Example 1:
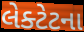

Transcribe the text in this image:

લેક્ટેટના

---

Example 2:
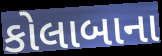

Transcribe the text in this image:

કોલાબાના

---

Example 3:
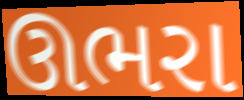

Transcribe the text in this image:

ઊભરા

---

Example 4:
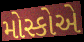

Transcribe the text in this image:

મોસ્કોએ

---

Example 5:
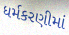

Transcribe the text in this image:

ધર્મકરણીમાં